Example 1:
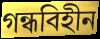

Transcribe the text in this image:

গন্ধবিহীন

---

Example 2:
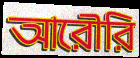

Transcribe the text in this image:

আরৌরি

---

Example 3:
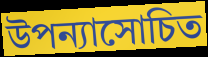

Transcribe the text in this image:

উপন্যাসোচিত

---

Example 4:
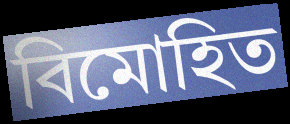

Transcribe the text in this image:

বিমোহিত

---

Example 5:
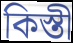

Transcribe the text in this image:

কিস্তী